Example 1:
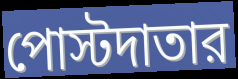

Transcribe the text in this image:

পোস্টদাতার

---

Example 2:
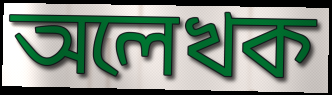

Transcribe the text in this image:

অলেখক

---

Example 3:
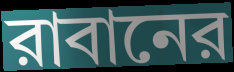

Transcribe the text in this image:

রাবানের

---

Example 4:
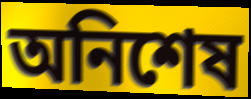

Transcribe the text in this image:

অনিশেষ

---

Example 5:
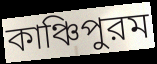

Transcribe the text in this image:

কাঞ্চিপুরম